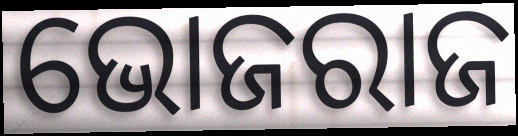
ଭୋଜରାଜ